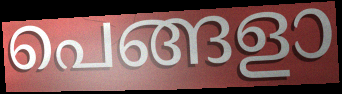
പെങ്ങളാ